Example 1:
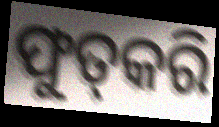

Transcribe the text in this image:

ଫୁତ୍‌କରି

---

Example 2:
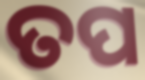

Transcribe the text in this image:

ତପ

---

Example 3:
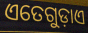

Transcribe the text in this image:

ଏତେଗୁଡ଼ାଏ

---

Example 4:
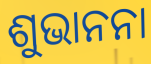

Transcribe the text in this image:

ଶୁଭାନନା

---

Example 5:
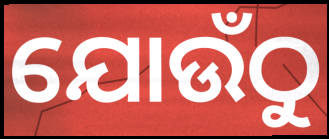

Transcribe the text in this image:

ଯୋଉଁଠୁ